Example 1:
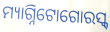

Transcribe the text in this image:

ମ୍ୟାଗ୍ନିଟୋଗୋରସ୍କ୍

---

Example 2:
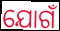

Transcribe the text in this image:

ଯୋଗଁ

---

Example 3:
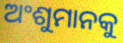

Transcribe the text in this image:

ଅଂଶୁମାନକୁ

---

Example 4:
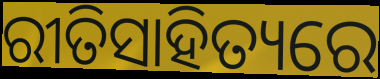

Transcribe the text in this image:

ରୀତିସାହିତ୍ୟରେ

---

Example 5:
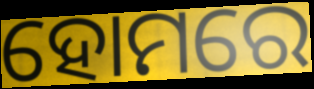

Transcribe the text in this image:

ହୋମରେ